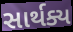
સાર્થક્ય